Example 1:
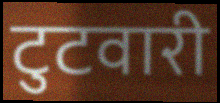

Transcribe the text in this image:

टुटवारी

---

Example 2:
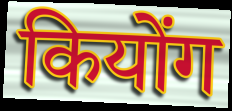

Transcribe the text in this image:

कियोंग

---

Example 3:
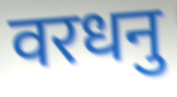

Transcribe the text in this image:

वरधनु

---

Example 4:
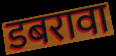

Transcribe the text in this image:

डबरावा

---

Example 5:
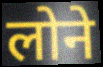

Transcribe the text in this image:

लोने